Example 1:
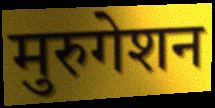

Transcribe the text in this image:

मुरुगेशन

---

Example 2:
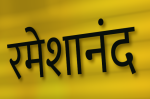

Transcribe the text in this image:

रमेशानंद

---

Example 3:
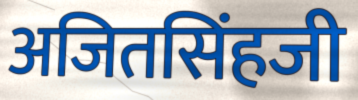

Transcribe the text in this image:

अजितसिंहजी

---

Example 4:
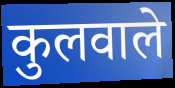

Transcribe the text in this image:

कुलवाले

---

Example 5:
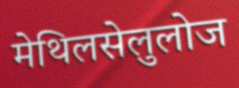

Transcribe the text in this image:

मेथिलसेलुलोज